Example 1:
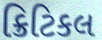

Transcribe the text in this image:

ક્રિટિકલ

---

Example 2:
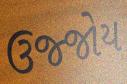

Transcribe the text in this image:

ઉજ્જોય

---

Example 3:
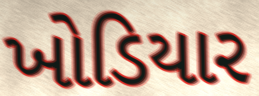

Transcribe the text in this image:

ખોડિયાર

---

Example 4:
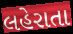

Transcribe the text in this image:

લહેરાતા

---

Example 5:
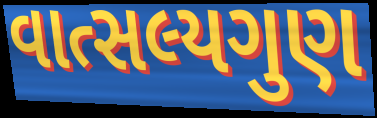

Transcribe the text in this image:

વાત્સલ્યગુણ